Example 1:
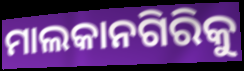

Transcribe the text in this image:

ମାଲକାନଗିରିକୁ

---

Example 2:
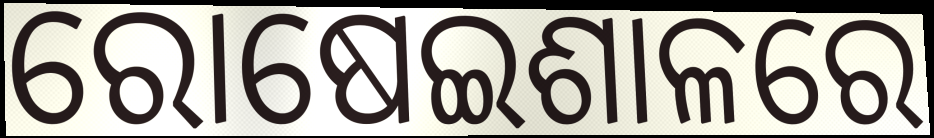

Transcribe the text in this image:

ରୋଷେଇଶାଳରେ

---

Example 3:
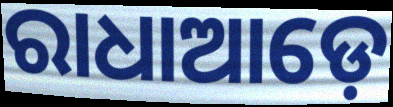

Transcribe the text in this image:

ରାଧାଆଡ଼େ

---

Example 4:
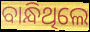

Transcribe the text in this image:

ବାନ୍ଧିଥିଲେ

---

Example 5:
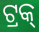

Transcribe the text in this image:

ଟ୍ରକ୍